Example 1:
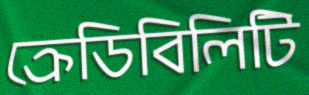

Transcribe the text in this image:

ক্রেডিবিলিটি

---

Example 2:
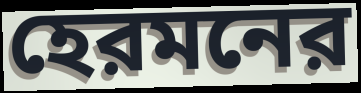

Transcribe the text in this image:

হেরমনের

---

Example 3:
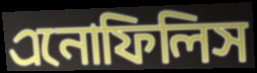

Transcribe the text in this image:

এনোফিলিস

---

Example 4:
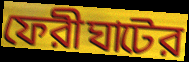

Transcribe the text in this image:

ফেরীঘাটের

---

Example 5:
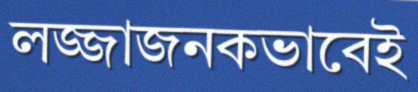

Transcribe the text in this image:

লজ্জাজনকভাবেই